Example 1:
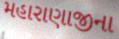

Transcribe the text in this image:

મહારાણાજીના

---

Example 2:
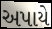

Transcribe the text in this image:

અપાયે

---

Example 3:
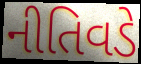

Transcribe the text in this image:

નીતિવડે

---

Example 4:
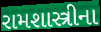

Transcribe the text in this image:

રામશાસ્ત્રીના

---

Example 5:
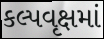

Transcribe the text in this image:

કલ્પવૃક્ષમાં